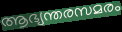
ആഭ്യന്തരസമരം